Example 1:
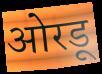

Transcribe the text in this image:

ओरडू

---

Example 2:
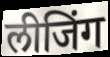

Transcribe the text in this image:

लीजिंग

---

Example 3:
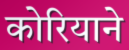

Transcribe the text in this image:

कोरियाने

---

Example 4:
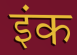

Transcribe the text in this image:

इंक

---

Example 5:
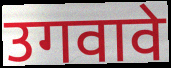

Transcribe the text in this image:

उगवावे